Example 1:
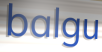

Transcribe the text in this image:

balgu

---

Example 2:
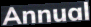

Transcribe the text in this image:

Annual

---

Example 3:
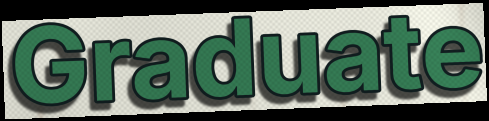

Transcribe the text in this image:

Graduate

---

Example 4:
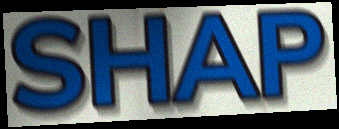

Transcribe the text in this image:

SHAP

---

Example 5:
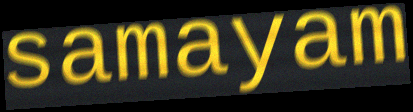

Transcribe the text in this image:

samayam